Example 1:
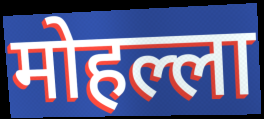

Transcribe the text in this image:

मोहल्ला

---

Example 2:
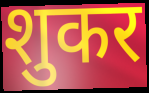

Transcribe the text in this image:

शुकर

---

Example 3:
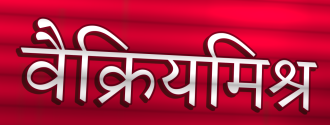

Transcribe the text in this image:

वैक्रियमिश्र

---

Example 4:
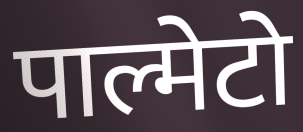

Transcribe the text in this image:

पाल्मेटो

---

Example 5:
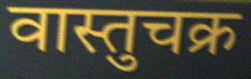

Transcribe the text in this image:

वास्तुचक्र